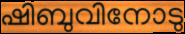
ഷിബുവിനോടു